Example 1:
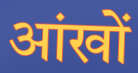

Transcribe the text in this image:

आंखों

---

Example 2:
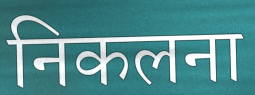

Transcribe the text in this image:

निकलना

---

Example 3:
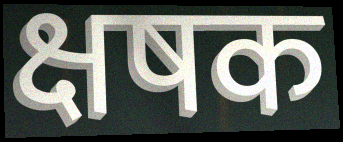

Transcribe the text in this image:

क्षषक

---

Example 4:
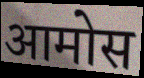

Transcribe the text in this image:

आमोस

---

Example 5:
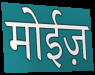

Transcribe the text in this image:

मोईज़